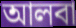
আলবা